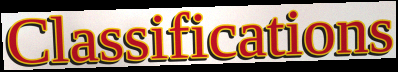
Classifications